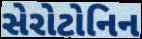
સેરોટોનિન